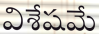
విశేషమే